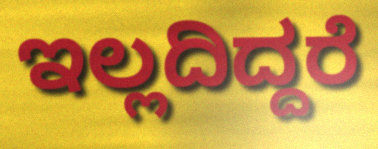
ಇಲ್ಲದಿದ್ದರೆ